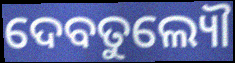
ଦେବତୁଲ୍ୟୌ